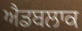
ਐਡਬਲਾਕ